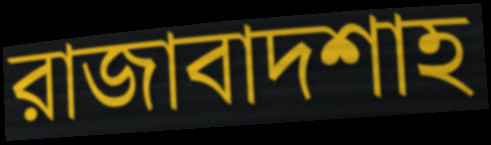
রাজাবাদশাহ